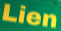
Lien